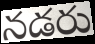
నడరు